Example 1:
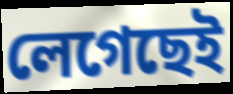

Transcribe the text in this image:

লেগেছেই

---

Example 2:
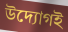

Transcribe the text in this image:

উদ্যোগই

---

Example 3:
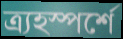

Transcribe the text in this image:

ত্র্যহস্পর্শে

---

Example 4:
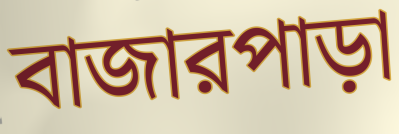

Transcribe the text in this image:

বাজারপাড়া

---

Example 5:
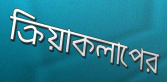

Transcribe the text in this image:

ক্রিয়াকলাপের